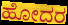
ಹೋದರ